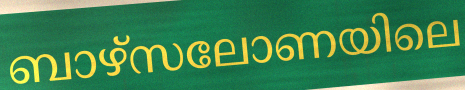
ബാഴ്സലോണയിലെ